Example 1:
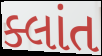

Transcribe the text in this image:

ક્લાંત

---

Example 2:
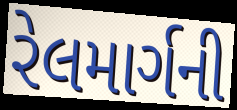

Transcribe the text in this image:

રેલમાર્ગની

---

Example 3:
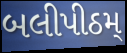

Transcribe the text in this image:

બલીપીઠમ્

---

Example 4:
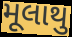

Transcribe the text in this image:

મૂલાથુ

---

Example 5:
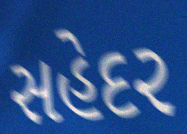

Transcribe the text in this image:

સહેદર